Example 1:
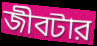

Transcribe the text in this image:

জীবটার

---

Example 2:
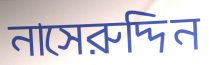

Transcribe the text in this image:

নাসেরুদ্দিন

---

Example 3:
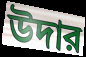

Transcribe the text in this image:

উদার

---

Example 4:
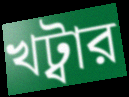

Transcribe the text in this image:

খট্বার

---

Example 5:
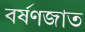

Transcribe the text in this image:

বর্ষণজাত